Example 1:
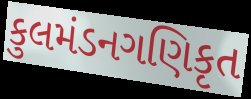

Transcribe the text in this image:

કુલમંડનગણિકૃત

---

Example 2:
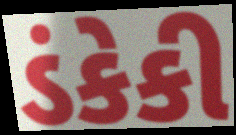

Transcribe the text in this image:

ડંકેકી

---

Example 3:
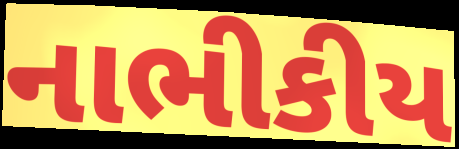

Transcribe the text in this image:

નાભીકીય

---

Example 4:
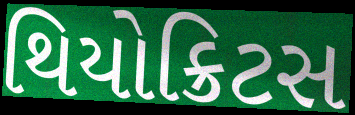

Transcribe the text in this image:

થિયોક્રિટસ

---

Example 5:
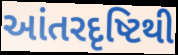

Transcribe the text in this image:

આંતરદૃષ્ટિથી